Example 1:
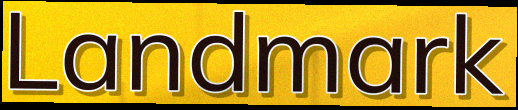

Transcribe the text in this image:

Landmark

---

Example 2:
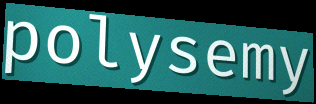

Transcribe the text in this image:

polysemy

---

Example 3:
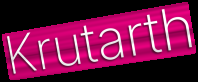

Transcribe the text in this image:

Krutarth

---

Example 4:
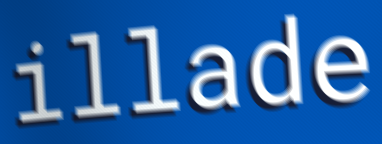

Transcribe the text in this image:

illade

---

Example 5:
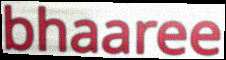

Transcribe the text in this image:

bhaaree